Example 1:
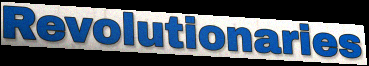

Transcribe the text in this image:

Revolutionaries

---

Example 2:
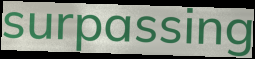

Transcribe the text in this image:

surpassing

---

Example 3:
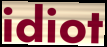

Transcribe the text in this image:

idiot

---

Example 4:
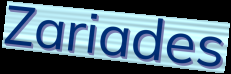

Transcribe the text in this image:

Zariades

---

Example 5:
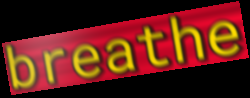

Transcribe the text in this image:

breathe